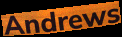
Andrews